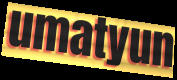
umatyun